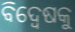
ବିଦ୍ବେଷକୁ